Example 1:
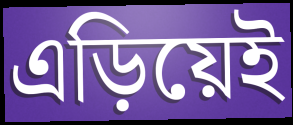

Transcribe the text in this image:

এড়িয়েই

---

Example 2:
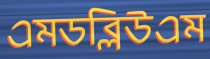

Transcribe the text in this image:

এমডব্লিউএম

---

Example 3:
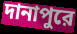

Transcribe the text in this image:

দানাপুরে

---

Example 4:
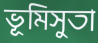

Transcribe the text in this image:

ভূমিসুতা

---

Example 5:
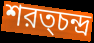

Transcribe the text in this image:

শরত্চন্দ্র